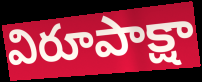
విరూపాక్షా